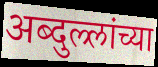
अब्दुल्लांच्या